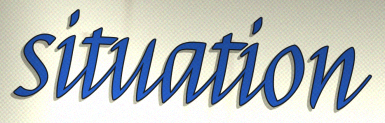
situation